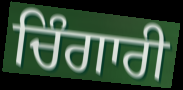
ਚਿੰਗਾਰੀ